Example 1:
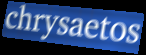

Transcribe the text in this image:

chrysaetos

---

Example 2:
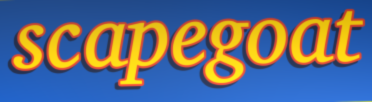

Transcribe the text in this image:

scapegoat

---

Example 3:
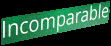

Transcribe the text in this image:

Incomparable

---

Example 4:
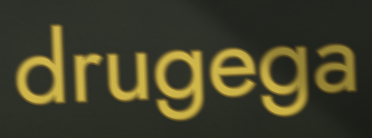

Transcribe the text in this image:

drugega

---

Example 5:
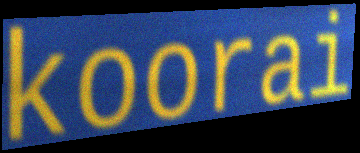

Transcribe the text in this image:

koorai